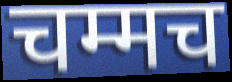
चम्मच